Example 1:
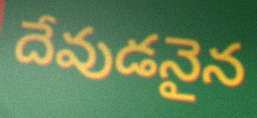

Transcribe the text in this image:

దేవుడనైన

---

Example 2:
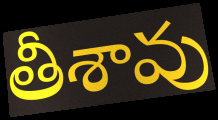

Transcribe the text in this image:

తీశావు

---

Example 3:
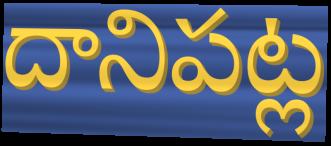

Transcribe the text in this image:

దానిపట్ల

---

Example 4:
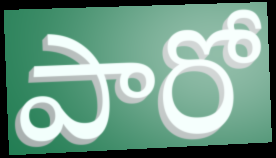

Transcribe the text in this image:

పారో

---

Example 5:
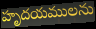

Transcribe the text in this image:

హృదయములను